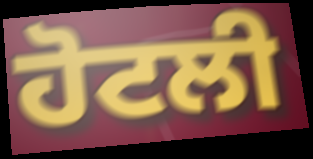
ਹੋਟਲੀ